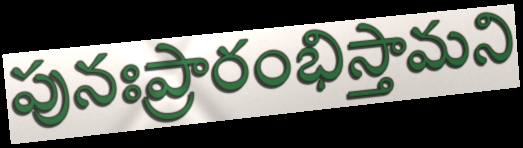
పునఃప్రారంభిస్తామని